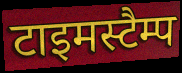
टाइमस्टैम्प